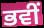
ਭਵੀਂ